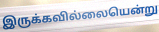
இருக்கவில்லையென்று